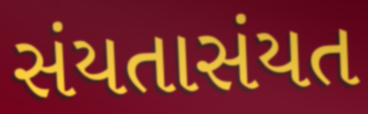
સંયતાસંયત